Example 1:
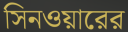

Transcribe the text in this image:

সিনওয়ারের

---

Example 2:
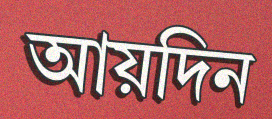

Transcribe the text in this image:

আয়দিন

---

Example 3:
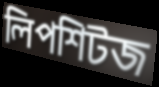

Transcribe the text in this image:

লিপশিটজ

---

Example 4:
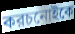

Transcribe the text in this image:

করচনোইকে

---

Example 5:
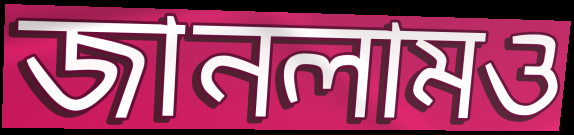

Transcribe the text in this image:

জানলামও